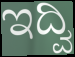
ಇದ್ವಿ